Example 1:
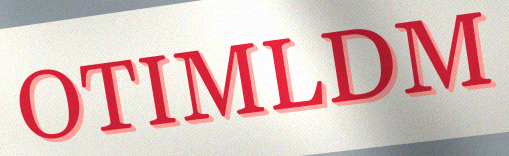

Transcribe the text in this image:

OTIMLDM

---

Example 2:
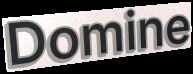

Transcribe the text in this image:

Domine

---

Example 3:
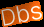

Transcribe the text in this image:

Dbs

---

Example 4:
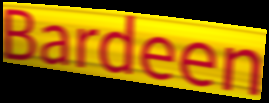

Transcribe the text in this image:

Bardeen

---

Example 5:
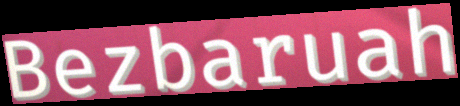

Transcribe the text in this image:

Bezbaruah